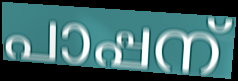
പാപ്പന്